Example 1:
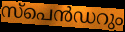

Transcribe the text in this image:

സ്പെൻഡറും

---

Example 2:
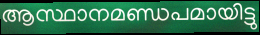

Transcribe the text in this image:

ആസ്ഥാനമണ്ഡപമായിട്ടു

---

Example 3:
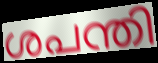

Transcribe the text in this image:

ശപന്തി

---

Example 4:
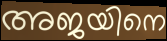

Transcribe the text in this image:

അജയിനെ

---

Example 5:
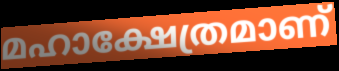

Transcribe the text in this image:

മഹാക്ഷേത്രമാണ്